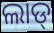
ଲାଡ୍